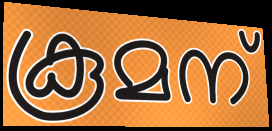
കൂമന്